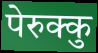
पेरुक्कु